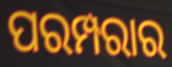
ପରମ୍ପରାର